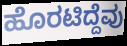
ಹೊರಟಿದ್ದೆವು